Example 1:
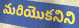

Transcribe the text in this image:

మరియొకనిని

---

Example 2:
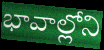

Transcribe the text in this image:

భావాల్లోని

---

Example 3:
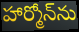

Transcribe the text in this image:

హార్మోన్‌ను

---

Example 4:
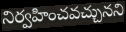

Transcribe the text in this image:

నిర్వహించవచ్చునని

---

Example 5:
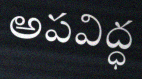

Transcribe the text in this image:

అపవిద్ధ